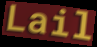
Lail